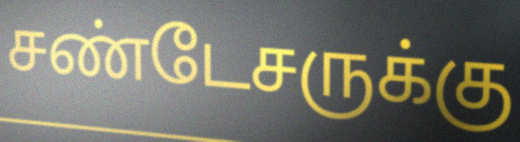
சண்டேசருக்கு